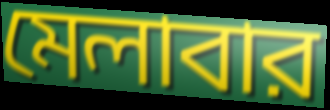
মেলাবার